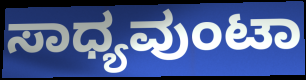
ಸಾಧ್ಯವುಂಟಾ